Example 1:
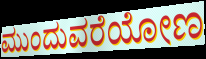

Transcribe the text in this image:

ಮುಂದುವರೆಯೋಣ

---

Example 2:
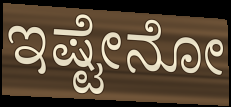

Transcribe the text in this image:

ಇಷ್ಟೇನೋ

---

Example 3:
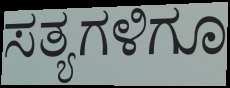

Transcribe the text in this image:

ಸತ್ಯಗಳಿಗೂ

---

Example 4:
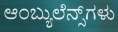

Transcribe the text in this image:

ಆಂಬ್ಯುಲೆನ್ಸ್‌ಗಳು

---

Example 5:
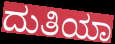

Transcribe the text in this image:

ದುತಿಯಾ